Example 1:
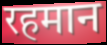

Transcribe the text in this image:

रहमान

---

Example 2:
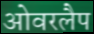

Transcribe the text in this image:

ओवरलैप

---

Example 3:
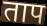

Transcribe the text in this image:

ताप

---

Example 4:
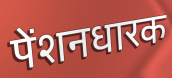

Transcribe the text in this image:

पेंशनधारक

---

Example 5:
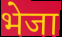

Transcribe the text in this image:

भेजा